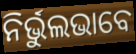
ନିର୍ଭୁଲଭାବେ